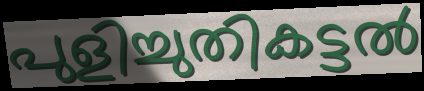
പുളിച്ചുതികട്ടൽ